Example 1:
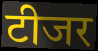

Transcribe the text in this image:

टीजर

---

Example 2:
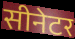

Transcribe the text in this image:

सीनेटर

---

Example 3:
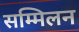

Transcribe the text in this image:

सम्मिलन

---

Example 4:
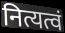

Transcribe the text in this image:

नित्यत्वं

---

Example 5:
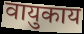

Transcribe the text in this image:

वायुकाय